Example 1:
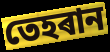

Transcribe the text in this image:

তেহৰান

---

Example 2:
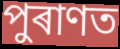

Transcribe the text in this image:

পুৰাণত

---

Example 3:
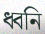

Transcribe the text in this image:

ধ্বনি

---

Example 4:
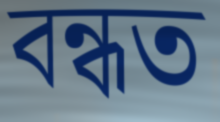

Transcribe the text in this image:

বন্ধত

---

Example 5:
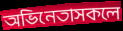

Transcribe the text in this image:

অভিনেতাসকলে